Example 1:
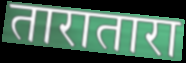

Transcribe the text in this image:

तारातारा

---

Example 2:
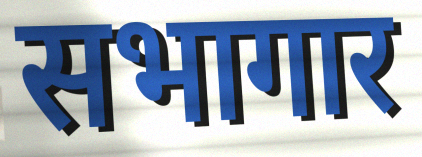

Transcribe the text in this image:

सभागार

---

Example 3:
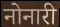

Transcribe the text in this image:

नोनारी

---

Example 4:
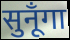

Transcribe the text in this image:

सुनूँगा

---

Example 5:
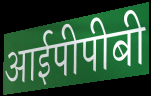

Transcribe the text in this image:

आईपीपीबी